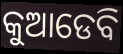
କୁଆଡେବି